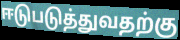
ஈடுபடுத்துவதற்கு